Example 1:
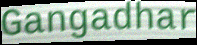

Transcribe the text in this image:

Gangadhar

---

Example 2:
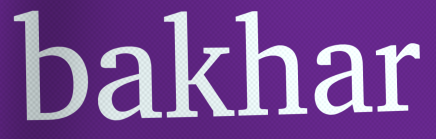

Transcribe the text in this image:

bakhar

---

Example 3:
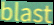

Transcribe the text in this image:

blast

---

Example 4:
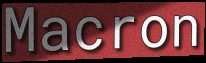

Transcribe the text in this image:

Macron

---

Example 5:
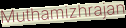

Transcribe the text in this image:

Muthamizhrajan